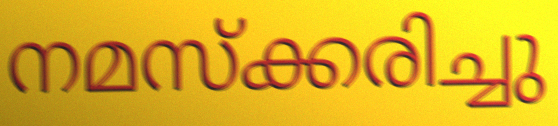
നമസ്ക്കരിച്ചു